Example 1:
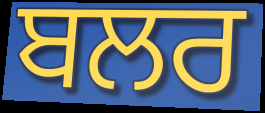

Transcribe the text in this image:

ਬਲਰ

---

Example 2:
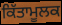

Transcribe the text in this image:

ਕਿੱਤਾਮੂਲਕ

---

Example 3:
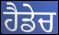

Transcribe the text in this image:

ਹੈਡੇਚ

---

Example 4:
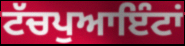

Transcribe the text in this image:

ਟੱਚਪੁਆਇੰਟਾਂ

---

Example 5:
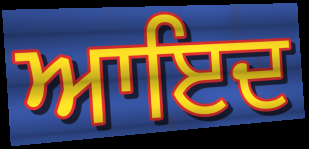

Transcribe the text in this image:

ਆਇਦ